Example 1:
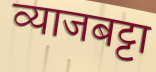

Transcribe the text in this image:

व्याजबट्टा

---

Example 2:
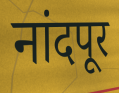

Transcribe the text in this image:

नांदपूर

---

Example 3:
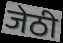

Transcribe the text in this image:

जेठी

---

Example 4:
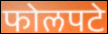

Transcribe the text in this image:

फोलपटे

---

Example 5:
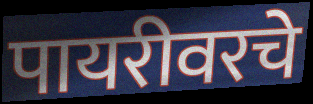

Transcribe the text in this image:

पायरीवरचे